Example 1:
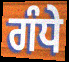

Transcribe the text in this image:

ਗੰਧੇ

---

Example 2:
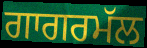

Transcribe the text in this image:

ਗਾਗਰਮੱਲ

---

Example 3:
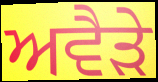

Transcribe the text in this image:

ਅਵੈੜੇ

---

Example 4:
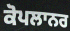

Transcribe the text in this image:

ਕੋਪਲਾਨਰ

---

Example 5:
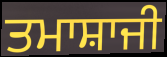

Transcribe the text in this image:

ਤਮਾਸ਼ਾਜੀ